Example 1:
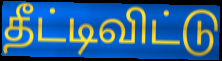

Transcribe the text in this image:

தீட்டிவிட்டு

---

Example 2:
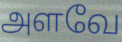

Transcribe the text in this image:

அளவே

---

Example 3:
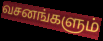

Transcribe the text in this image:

வசனங்களும்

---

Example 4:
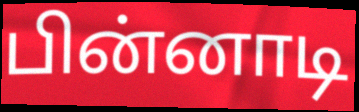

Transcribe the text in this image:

பின்னாடி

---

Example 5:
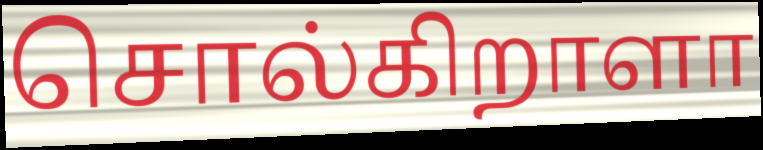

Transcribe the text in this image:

சொல்கிறாளா